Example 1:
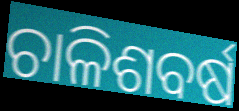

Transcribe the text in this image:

ଚାଳିଶବର୍ଷ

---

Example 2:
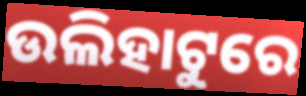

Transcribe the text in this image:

ଉଲିହାଟୁରେ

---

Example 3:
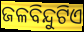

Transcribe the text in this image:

ଜଳବିନ୍ଦୁଟିଏ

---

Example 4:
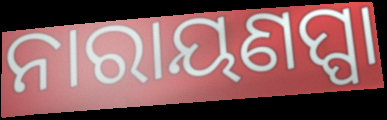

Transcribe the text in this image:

ନାରାୟଣପ୍ପା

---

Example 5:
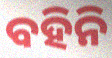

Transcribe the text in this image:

ବହିନି